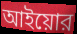
আইয়োর